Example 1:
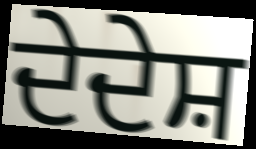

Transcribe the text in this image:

ਦੇਦੇਸ਼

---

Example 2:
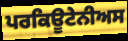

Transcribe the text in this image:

ਪਰਕਿਊਟੇਨੀਅਸ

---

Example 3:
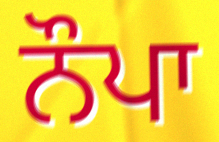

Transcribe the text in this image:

ਨੌਪਾ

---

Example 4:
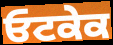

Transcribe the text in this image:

ਓਟਕੇਕ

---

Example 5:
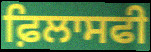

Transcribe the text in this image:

ਫ਼ਿਲਾਸਫੀ